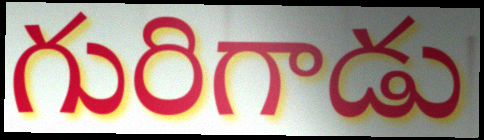
గురిగాడు